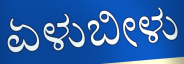
ಏಳುಬೀಳು